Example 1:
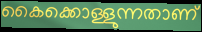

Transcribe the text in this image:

കൈക്കൊള്ളുന്നതാണ്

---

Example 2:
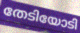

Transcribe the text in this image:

തേടിയോടി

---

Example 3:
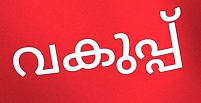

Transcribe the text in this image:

വകുപ്പ്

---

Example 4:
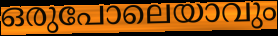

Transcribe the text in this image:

ഒരുപോലെയാവും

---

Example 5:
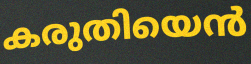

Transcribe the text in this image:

കരുതിയെൻ